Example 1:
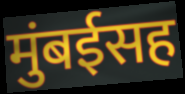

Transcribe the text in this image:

मुंबईसह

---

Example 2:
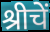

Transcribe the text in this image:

श्रीचें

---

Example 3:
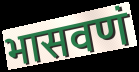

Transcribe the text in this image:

भासवणं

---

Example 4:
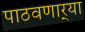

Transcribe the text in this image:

पाठवणार्या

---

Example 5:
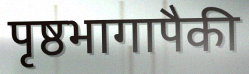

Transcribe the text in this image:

पृष्ठभागापैकी